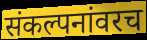
संकल्पनांवरच